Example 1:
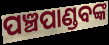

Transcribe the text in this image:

ପଞ୍ଚପାଣ୍ଡବଙ୍କ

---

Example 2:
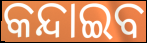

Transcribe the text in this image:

କନ୍ଦାଇବ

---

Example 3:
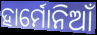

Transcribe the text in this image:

ହାର୍ମୋନିଆଁ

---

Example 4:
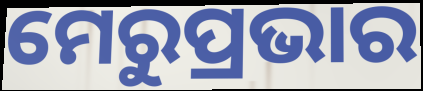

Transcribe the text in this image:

ମେରୁପ୍ରଭାର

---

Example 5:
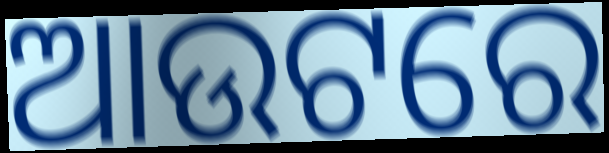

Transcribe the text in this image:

ଆଉଟରେ